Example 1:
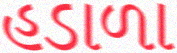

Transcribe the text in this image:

હડાળા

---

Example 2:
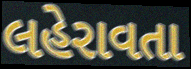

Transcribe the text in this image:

લહેરાવતા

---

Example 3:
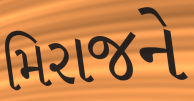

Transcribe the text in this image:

મિરાજને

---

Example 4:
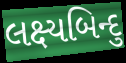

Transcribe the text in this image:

લક્ષ્યબિન્દુ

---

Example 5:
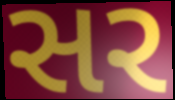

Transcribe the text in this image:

સર